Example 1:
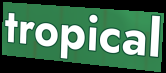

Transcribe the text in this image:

tropical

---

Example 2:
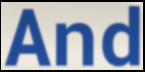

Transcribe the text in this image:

And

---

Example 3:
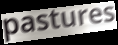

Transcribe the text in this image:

pastures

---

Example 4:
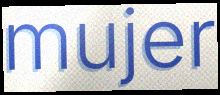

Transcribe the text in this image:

mujer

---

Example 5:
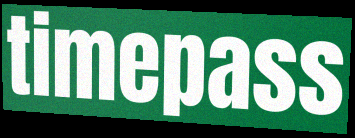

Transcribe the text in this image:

timepass